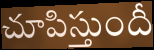
చూపిస్తుందీ